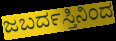
ಜಬರ್ದಸ್ತಿನಿಂದ